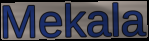
Mekala